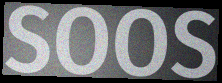
SOOS